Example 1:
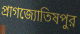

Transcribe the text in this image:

প্রাগজ্যোতিষপুর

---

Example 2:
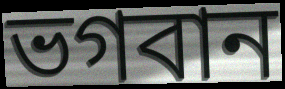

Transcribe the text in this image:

ভগবান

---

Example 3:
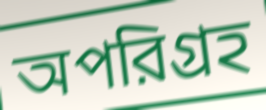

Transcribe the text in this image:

অপরিগ্রহ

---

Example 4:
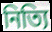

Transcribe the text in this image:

নিত্যি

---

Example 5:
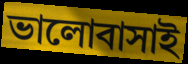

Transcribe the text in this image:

ভালোবাসাই